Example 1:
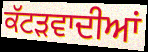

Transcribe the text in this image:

ਕੱਟੜਵਾਦੀਆਂ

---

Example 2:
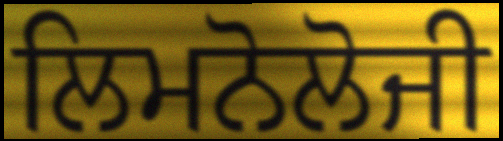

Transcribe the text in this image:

ਲਿਮਨੋਲੋਜੀ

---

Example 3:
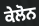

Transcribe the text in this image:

ਕੇਲੋਨ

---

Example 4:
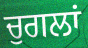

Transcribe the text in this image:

ਚੁਗਲਾਂ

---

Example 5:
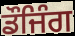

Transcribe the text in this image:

ਡੌਜਿੰਗ